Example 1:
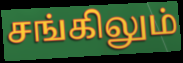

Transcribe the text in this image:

சங்கிலும்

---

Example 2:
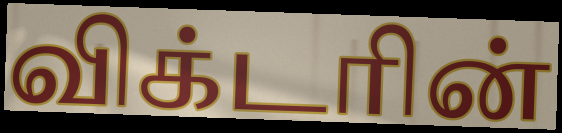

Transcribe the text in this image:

விக்டரின்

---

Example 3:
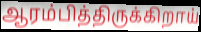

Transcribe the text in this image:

ஆரம்பித்திருக்கிறாய்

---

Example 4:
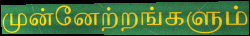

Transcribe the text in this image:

முன்னேற்றங்களும்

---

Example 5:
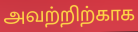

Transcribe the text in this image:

அவற்றிற்காக